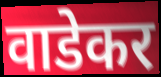
वाडेकर